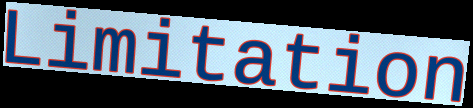
Limitation